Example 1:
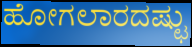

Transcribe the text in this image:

ಹೋಗಲಾರದಷ್ಟು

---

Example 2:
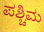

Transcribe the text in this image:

ಪಶ್ಚಿಮ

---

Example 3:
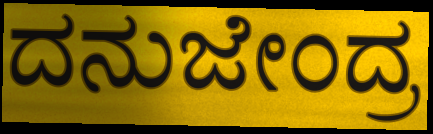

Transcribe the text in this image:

ದನುಜೇಂದ್ರ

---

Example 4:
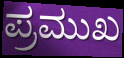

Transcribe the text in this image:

ಪ್ರಮುಖ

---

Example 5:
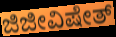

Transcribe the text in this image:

ಜಿಜೀವಿಷೇತ್